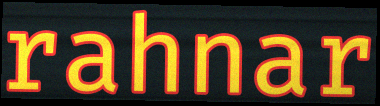
rahnar